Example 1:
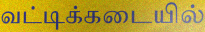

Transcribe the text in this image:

வட்டிக்கடையில்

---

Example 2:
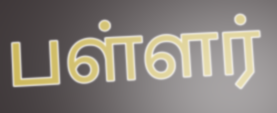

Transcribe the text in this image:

பள்ளர்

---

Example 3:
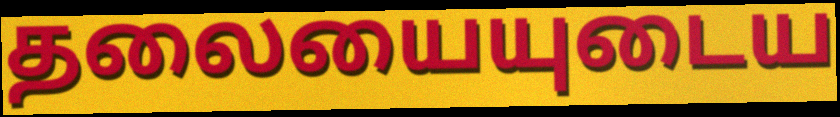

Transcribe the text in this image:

தலையையுடைய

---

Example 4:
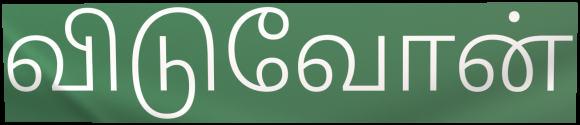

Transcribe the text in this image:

விடுவோன்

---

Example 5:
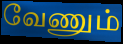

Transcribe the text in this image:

வேணும்